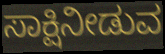
ಸಾಕ್ಷಿನೀಡುವ